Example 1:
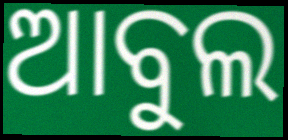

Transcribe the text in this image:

ଆବୁଲ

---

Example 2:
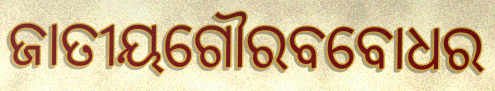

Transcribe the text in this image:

ଜାତୀୟଗୌରବବୋଧର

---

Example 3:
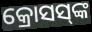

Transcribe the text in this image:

କ୍ରୋସସ୍‌ଙ୍କ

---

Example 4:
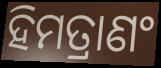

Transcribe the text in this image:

ହିମତ୍ରାଣଂ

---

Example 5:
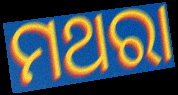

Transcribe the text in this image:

ମଥରା